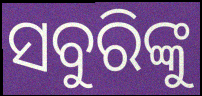
ସବୁରିଙ୍କୁ